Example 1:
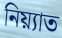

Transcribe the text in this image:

নিয়্যাত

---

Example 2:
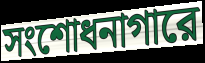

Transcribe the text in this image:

সংশোধনাগারে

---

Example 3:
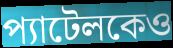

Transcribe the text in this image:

প্যাটেলকেও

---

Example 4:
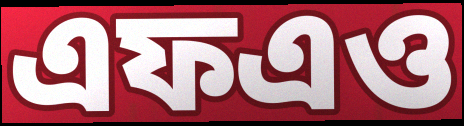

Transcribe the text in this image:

এফএও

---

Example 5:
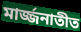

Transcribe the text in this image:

মার্জ্জনাতীত